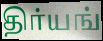
திர்யங்